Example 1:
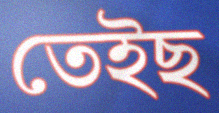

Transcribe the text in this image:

তেইছ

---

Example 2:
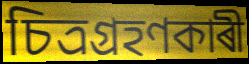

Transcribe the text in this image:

চিত্ৰগ্ৰহণকাৰী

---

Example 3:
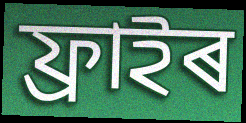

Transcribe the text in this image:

ফ্ৰাইৰ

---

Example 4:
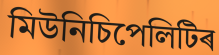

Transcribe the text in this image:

মিউনিচিপেলিটিৰ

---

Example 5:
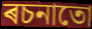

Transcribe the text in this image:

ৰচনাতো